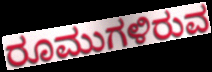
ರೂಮುಗಳಿರುವ